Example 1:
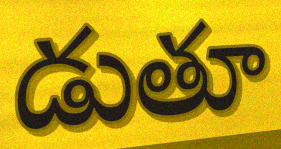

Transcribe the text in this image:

డుతూ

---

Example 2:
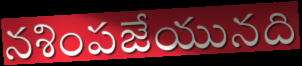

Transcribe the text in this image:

నశింపజేయునది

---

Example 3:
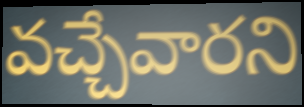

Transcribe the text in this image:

వచ్చేవారని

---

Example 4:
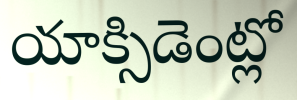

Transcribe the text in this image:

యాక్సిడెంట్లో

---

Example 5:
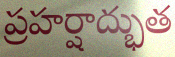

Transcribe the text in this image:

ప్రహర్షాద్భుత